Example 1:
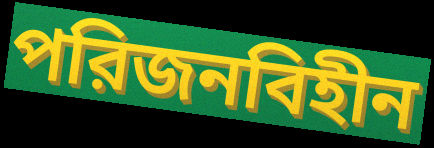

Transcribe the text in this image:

পরিজনবিহীন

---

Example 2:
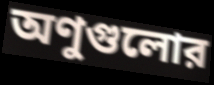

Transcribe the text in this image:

অণুগুলোর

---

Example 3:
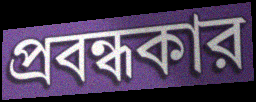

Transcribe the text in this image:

প্রবন্ধকার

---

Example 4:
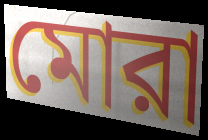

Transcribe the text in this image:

মোরা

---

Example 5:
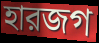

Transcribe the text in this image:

হারজগ